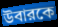
উবারকে